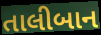
તાલીબાન